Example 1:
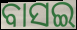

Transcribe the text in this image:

ବାସଇ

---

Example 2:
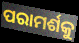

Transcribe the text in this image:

ପରାମର୍ଶକୁ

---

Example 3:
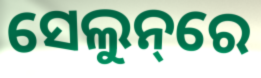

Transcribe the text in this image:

ସେଲୁନ୍‌ରେ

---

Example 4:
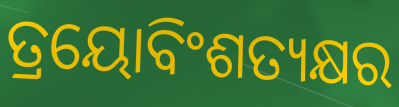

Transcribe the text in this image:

ତ୍ରୟୋବିଂଶତ୍ୟକ୍ଷର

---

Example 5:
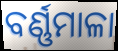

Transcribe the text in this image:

ବର୍ଣ୍ଣମାଳା